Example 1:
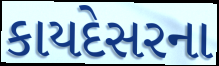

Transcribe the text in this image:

કાયદેસરના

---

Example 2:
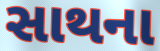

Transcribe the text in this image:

સાથના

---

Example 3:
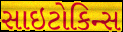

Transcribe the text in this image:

સાઇટોકિન્સ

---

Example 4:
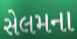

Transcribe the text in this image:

સેલમના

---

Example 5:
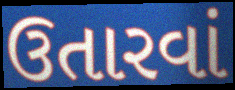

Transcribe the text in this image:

ઉતારવાં